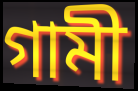
গামী